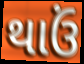
થાઉં